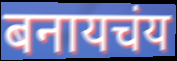
बनायचंय